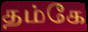
தம்கே